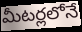
మీటర్లలోనే